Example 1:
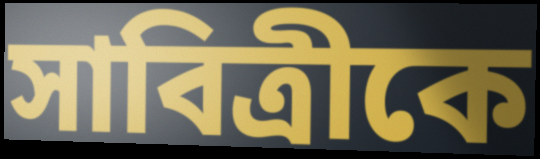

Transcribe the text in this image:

সাবিত্রীকে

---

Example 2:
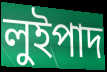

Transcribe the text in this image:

লুইপাদ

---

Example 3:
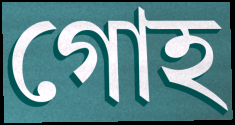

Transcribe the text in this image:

গোহ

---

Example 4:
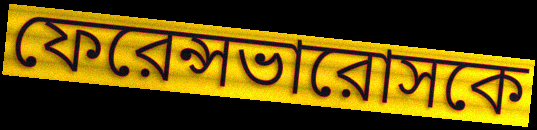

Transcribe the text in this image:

ফেরেন্সভারোসকে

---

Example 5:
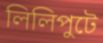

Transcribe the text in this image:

লিলিপুটে